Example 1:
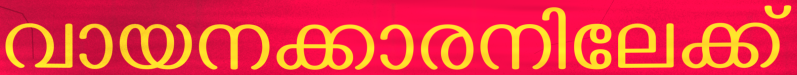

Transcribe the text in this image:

വായനക്കാരനിലേക്ക്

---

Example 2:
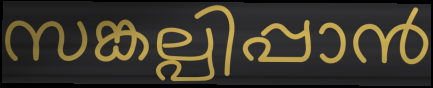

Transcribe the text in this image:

സങ്കല്പിപ്പാൻ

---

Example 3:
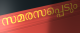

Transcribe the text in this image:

സമരസപ്പെടും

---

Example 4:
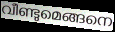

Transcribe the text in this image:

വീണ്ടുമെങ്ങനെ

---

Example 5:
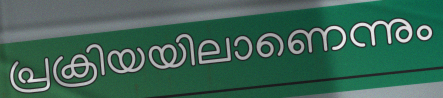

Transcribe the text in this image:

പ്രക്രിയയിലാണെന്നും